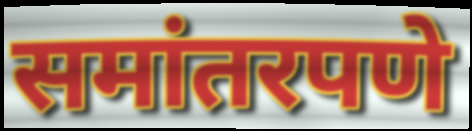
समांतरपणे